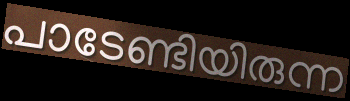
പാടേണ്ടിയിരുന്ന